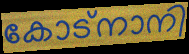
കോട്നാനി